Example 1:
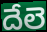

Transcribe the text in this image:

దేలె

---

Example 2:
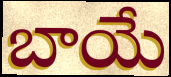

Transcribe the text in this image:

బాయే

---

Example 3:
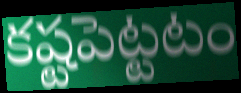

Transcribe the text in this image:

కష్టపెట్టటం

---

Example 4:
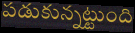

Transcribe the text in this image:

పడుకున్నట్టుంది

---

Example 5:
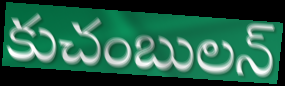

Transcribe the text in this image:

కుచంబులన్